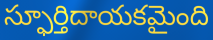
స్ఫూర్తిదాయకమైంది